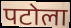
पटोला